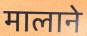
मालाने